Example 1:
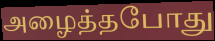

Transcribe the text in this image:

அழைத்தபோது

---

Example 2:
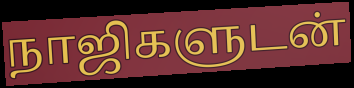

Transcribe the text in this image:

நாஜிகளுடன்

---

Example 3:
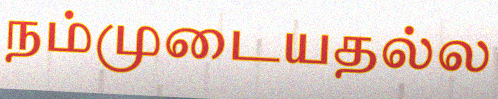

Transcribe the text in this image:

நம்முடையதல்ல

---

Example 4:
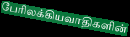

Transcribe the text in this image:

பேரிலக்கியவாதிகளின்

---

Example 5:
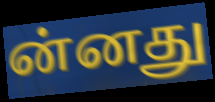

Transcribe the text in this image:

ன்னது